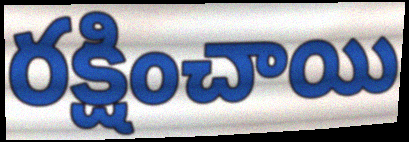
రక్షించాయి